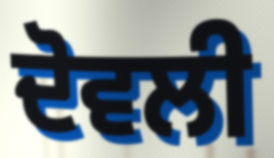
ਦੋਵਲੀ